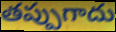
తప్పుగాదు